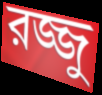
রজ্জু